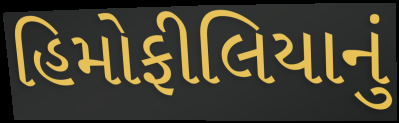
હિમોફીલિયાનું